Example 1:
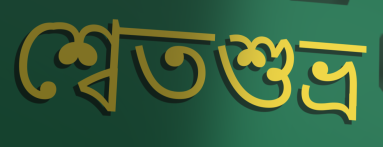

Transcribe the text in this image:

শ্বেতশুভ্র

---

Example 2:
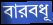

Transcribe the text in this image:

বারবধূ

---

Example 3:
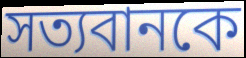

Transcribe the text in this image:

সত্যবানকে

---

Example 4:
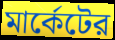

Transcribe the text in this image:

মার্কেটের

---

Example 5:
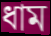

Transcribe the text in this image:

ধাম